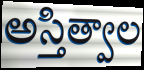
అస్తిత్వాల